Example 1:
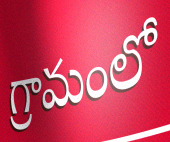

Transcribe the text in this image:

గ్రామంలో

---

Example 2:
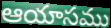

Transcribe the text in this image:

ఆయాసము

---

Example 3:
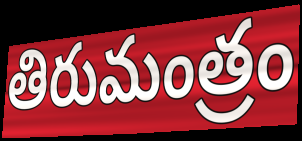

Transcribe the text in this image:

తిరుమంత్రం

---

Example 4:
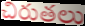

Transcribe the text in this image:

చిరుతలు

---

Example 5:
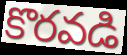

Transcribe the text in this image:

కొరవడి